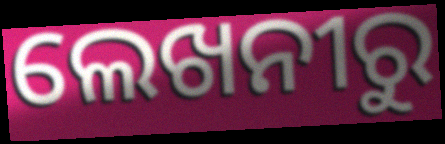
ଲେଖନୀରୁ